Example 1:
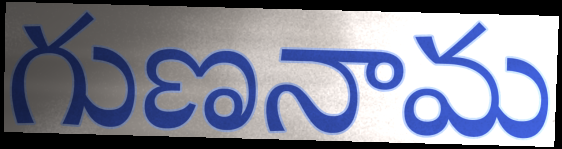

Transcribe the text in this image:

గుణనామ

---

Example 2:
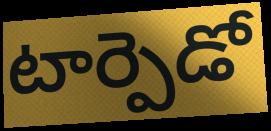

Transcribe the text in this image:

టార్పెడో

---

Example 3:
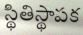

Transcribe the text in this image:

స్థితిస్థాపక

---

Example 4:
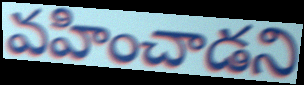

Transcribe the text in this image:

వహించాడని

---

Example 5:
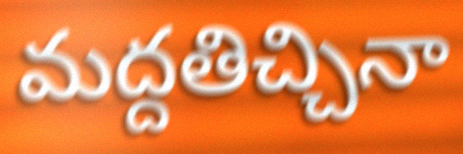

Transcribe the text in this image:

మద్దతిచ్చినా